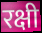
रक्षी